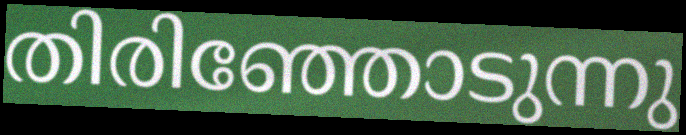
തിരിഞ്ഞോടുന്നു